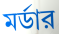
মর্ডার